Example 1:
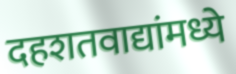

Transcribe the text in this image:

दहशतवाद्यांमध्ये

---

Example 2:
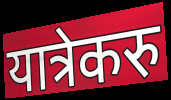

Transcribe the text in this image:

यात्रेकरु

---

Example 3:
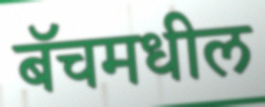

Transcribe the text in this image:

बॅचमधील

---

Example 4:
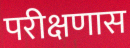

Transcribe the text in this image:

परीक्षणास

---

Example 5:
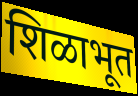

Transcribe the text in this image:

शिळाभूत